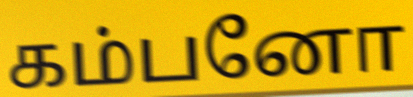
கம்பனோ